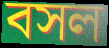
বসল